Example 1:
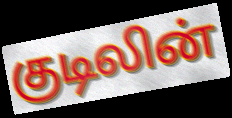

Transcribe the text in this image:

குடிலின்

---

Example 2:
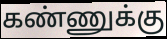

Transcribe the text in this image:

கண்ணுக்கு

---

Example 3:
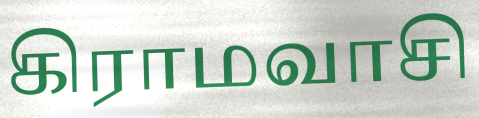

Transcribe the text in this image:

கிராமவாசி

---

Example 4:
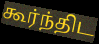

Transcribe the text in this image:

கூர்ந்திட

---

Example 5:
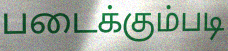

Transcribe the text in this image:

படைக்கும்படி